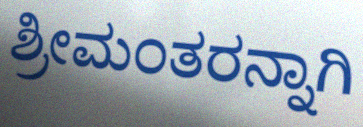
ಶ್ರೀಮಂತರನ್ನಾಗಿ